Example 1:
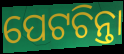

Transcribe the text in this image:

ପେଟଚିନ୍ତା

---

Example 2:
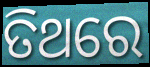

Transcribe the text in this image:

ତିଥରେ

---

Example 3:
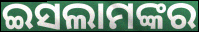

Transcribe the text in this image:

ଇସଲାମଙ୍କର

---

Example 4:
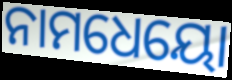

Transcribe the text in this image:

ନାମଧେୟୋ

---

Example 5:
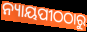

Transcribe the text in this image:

ନ୍ୟାୟପୀଠଠାରୁ